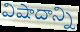
విషాదాన్ని